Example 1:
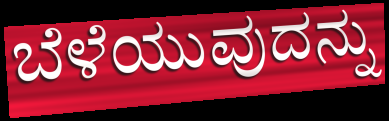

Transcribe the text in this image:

ಬೆಳೆಯುವುದನ್ನು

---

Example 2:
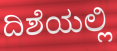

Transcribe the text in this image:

ದಿಶೆಯಲ್ಲಿ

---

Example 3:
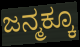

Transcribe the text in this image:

ಜನ್ಮಕ್ಕೂ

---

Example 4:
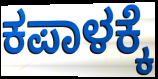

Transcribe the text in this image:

ಕಪಾಳಕ್ಕೆ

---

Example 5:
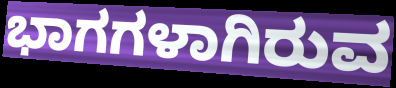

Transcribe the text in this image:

ಭಾಗಗಳಾಗಿರುವ